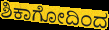
ಶಿಕಾಗೋದಿಂದ